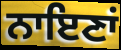
ਨਾਇਣਾਂ